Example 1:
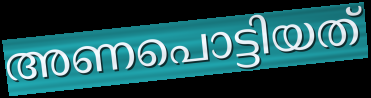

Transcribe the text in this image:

അണപൊട്ടിയത്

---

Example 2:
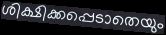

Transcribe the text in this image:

ശിക്ഷിക്കപ്പെടാതെയും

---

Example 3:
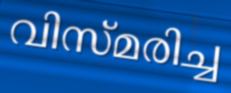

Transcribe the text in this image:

വിസ്മരിച്ച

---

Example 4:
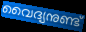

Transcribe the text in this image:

വൈദ്യനുണ്ട്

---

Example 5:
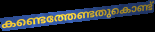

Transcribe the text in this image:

കണ്ടെത്തേണ്ടതുകൊണ്ട്